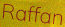
Raffan